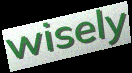
wisely